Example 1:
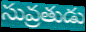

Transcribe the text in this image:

సువ్రతుడు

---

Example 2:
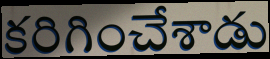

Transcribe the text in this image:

కరిగించేశాడు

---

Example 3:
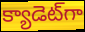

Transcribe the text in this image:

క్యాడెట్‌గా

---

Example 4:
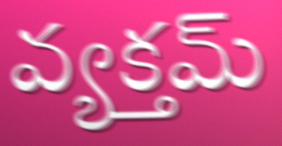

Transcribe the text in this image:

వ్యక్తమ్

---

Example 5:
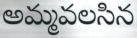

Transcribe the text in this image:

అమ్మవలసిన